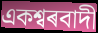
একশ্বৰবাদী